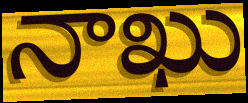
నాఖు